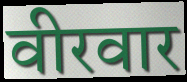
वीरवार